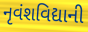
નૃવંશવિદ્યાની